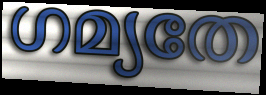
ഗമ്യതേ